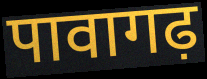
पावागढ़